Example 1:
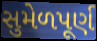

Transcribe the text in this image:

સુમેળપૂર્ણ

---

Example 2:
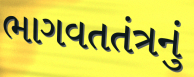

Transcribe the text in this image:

ભાગવતતંત્રનું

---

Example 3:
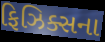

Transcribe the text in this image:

ફિઝિક્સના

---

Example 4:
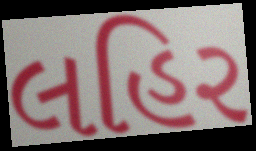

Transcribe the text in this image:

લહિર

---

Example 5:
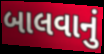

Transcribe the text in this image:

બાલવાનું